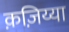
क़ज़िय्या